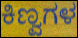
ಕಿಣ್ವಗಳ